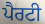
ਪੈਰਟੀ